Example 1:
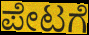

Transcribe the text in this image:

ಪೇಟಗೆ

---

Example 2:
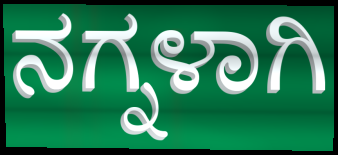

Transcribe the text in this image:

ನಗ್ನಳಾಗಿ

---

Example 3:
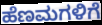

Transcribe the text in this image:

ಹೆಣಮಗಳಿಗೆ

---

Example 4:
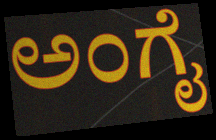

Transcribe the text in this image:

ಅಂಗೈ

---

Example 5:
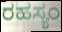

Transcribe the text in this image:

ರಹಸ್ಯಂ